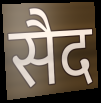
सैद